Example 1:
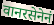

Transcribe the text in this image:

वानरसेनेनं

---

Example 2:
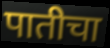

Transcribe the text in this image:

पातीचा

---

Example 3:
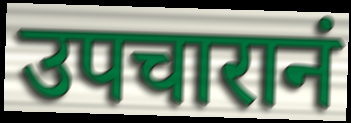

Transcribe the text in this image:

उपचारानं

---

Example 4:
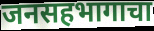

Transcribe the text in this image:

जनसहभागाचा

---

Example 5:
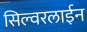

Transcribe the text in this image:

सिल्वरलाईन